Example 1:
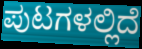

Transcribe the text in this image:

ಪುಟಗಳಲ್ಲಿದೆ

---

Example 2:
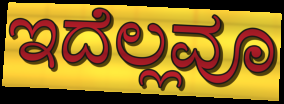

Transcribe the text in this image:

ಇದೆಲ್ಲವೂ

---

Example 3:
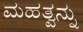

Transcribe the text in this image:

ಮಹತ್ವನ್ನು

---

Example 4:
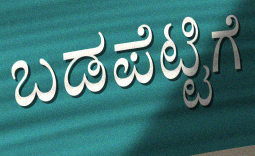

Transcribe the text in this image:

ಬಡಪೆಟ್ಟಿಗೆ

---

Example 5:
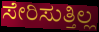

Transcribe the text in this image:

ಸೇರಿಸುತ್ತಿಲ್ಲ